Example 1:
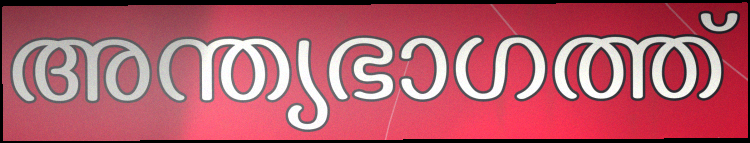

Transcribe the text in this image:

അന്ത്യഭാഗത്ത്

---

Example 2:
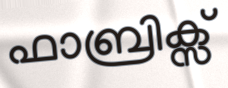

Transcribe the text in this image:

ഫാബ്രിക്സ്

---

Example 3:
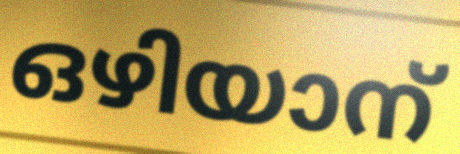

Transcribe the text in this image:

ഒഴിയാന്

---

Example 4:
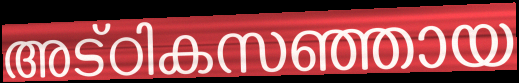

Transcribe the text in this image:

അട്ഠികസഞ്ഞായ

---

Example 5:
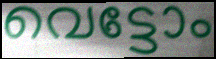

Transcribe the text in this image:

വെട്ടോം